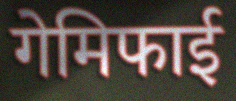
गेमिफाई